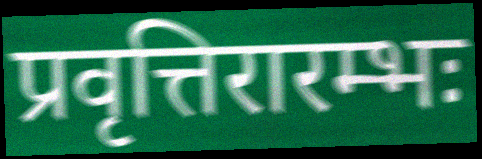
प्रवृत्तिरारम्भः